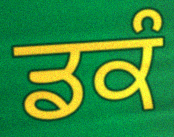
ਡਕੰ